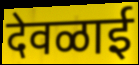
देवळाई